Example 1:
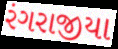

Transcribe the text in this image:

રંગરાજીયા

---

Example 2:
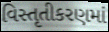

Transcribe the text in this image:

વિસ્તૃતીકરણમાં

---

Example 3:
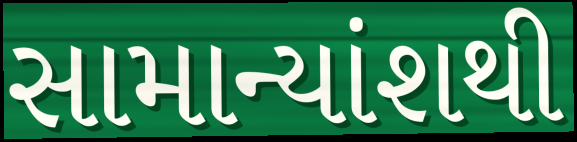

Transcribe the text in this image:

સામાન્યાંશથી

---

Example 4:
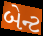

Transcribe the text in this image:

બેન્ટ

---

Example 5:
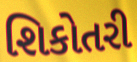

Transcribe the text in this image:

શિકોતરી